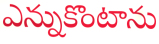
ఎన్నుకొంటాను